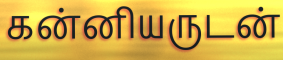
கன்னியருடன்